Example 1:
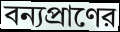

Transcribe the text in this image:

বন্যপ্রাণের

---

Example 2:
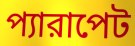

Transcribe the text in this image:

প্যারাপেট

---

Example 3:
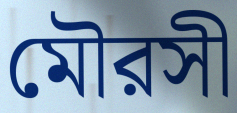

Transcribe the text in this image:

মৌরসী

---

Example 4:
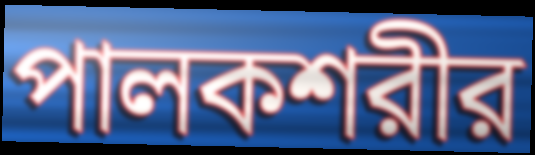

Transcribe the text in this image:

পালকশরীর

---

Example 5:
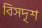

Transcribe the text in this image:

বিসদৃশ